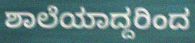
ಶಾಲೆಯಾದ್ದರಿಂದ